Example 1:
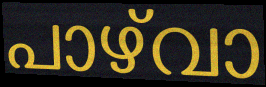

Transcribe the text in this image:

പാഴ്‌വാ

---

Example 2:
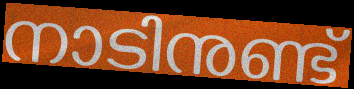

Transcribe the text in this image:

നാടിനുണ്ട്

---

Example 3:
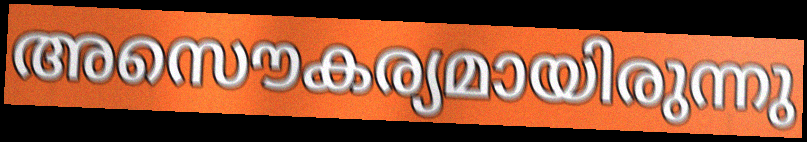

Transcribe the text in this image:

അസൌകര്യമായിരുന്നു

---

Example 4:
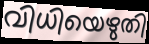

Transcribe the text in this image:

വിധിയെഴുതി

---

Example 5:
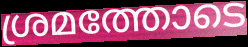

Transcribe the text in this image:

ശ്രമത്തോടെ